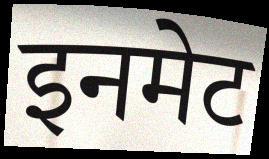
इनमेट